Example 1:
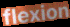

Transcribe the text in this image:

flexion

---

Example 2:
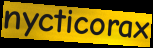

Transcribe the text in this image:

nycticorax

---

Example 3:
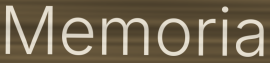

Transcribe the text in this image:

Memoria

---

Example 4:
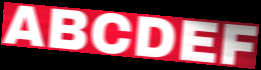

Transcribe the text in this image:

ABCDEF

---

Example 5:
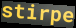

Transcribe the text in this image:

stirpe